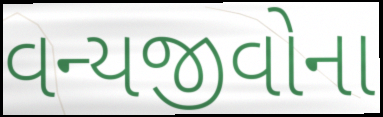
વન્યજીવોના